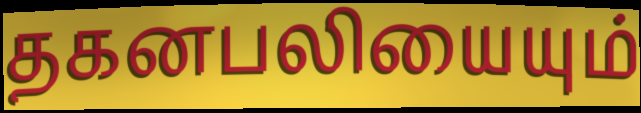
தகனபலியையும்